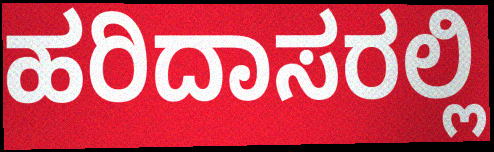
ಹರಿದಾಸರಲ್ಲಿ